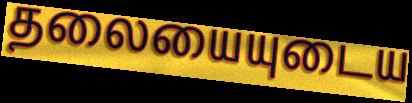
தலையையுடைய